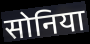
सोनिया